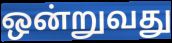
ஒன்றுவது